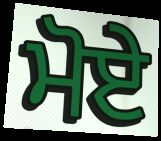
ਮੋਏ